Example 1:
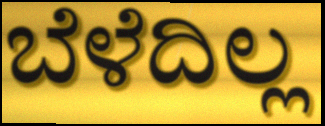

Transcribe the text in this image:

ಬೆಳೆದಿಲ್ಲ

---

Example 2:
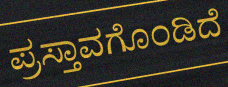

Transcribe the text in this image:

ಪ್ರಸ್ತಾವಗೊಂಡಿದೆ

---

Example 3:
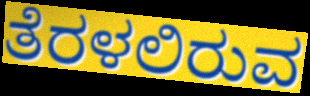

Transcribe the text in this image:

ತೆರಳಲಿರುವ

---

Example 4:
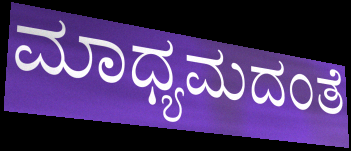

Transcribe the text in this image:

ಮಾಧ್ಯಮದಂತೆ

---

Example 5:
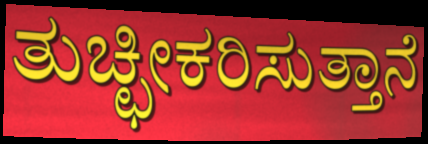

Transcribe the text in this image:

ತುಚ್ಛೀಕರಿಸುತ್ತಾನೆ